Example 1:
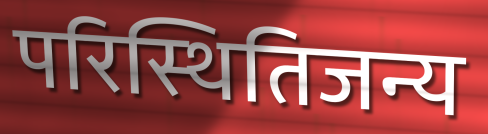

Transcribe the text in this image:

परिस्थितिजन्य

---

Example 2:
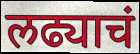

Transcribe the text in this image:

लढ्याचं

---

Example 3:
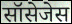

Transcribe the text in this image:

सॉसेजेस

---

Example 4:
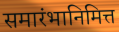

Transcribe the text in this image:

समारंभानिमित्त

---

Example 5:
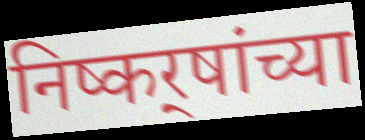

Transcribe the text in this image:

निष्कर्षांच्या